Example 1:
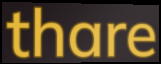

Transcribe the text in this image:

thare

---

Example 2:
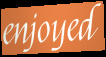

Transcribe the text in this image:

enjoyed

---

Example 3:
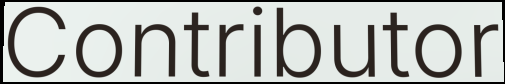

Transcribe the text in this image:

Contributor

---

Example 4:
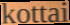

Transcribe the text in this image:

kottai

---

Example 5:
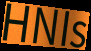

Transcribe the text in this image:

HNIs